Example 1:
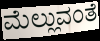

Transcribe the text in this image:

ಮೆಲ್ಲುವಂತೆ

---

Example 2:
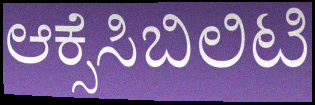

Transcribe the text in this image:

ಆಕ್ಸೆಸಿಬಿಲಿಟಿ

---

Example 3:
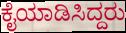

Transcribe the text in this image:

ಕೈಯಾಡಿಸಿದ್ದರು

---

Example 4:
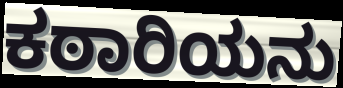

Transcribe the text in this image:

ಕಠಾರಿಯನು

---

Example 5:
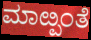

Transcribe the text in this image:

ಮಾೞ್ಪಂತೆ